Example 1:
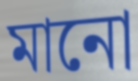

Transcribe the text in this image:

মানো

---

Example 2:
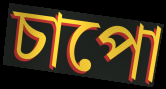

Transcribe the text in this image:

চাপো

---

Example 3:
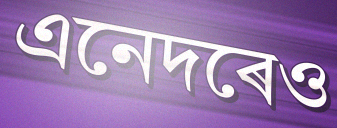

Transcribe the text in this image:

এনেদৰেও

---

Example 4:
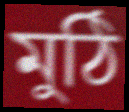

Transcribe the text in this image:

মুঠি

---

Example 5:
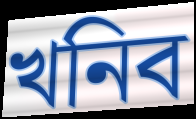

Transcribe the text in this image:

খনিব